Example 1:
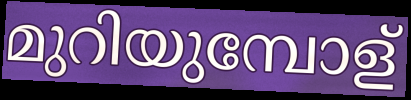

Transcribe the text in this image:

മുറിയുമ്പോള്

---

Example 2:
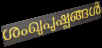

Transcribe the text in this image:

ശംഖുപുഷ്പങ്ങൾ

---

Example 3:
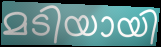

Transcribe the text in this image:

മടിയായി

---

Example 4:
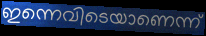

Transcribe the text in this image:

ഇന്നെവിടെയാണെന്ന്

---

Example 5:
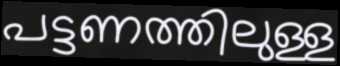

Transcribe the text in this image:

പട്ടണത്തിലുള്ള